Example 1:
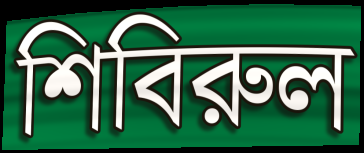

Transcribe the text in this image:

শিবিরুল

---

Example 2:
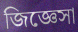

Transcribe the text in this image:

জিজ্ঞেসা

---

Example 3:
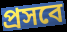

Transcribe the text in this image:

প্রসবে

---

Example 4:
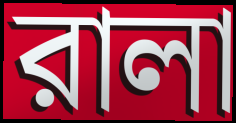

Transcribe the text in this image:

রালা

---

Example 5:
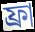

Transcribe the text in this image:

ফ্রা